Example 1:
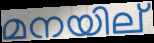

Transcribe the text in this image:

മനയില്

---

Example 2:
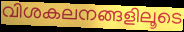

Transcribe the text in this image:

വിശകലനങ്ങളിലൂടെ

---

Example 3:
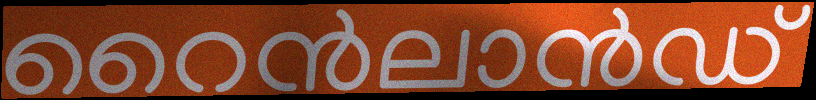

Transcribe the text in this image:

റൈൻലാൻഡ്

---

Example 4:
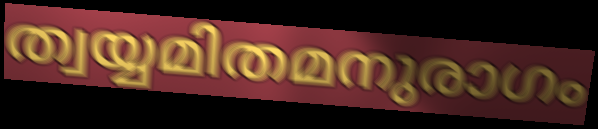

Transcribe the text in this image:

ത്വയ്യമിതമനുരാഗം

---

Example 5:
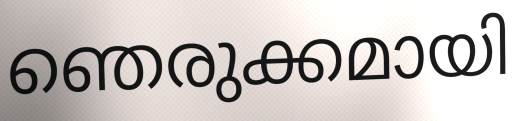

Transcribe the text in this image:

ഞെരുക്കമായി